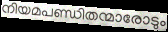
നിയമപണ്ഡിതന്മാരോടും